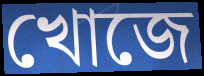
খোজে